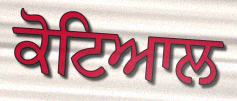
ਕੋਟਿਆਲ